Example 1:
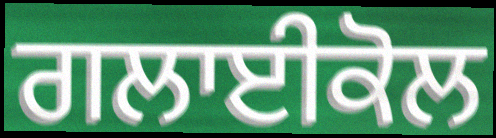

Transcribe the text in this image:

ਗਲਾਈਕੋਲ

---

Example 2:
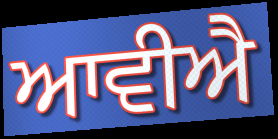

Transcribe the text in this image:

ਆਵੀਐ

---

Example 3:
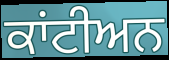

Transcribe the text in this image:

ਕਾਂਟੀਅਨ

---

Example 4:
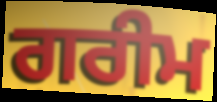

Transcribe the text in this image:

ਗਰੀਮ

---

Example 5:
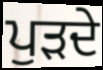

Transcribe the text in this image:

ਪੁੜਦੇ